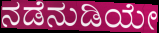
ನಡೆನುಡಿಯೇ